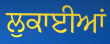
ਲੁਕਾਈਆਂ